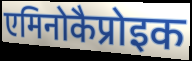
एमिनोकैप्रोइक